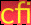
cfi